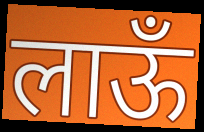
लाऊँ